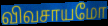
விவசாயமோ